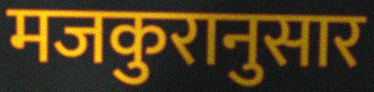
मजकुरानुसार